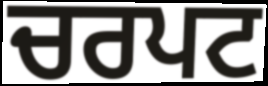
ਚਰਪਟ